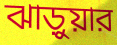
ঝাড়ুয়ার